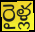
రైళ్ల